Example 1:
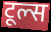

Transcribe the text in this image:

टूल्स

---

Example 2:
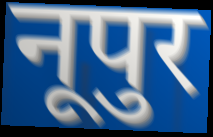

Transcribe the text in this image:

नूपुर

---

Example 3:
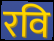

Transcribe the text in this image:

रवि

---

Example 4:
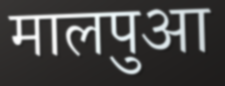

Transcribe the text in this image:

मालपुआ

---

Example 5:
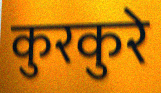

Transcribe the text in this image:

कुरकुरे